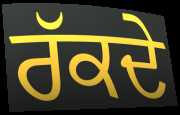
ਰੱਕਦੇ